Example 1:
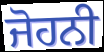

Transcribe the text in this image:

ਜੋਹਨੀ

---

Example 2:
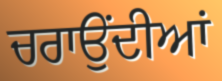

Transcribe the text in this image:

ਚਰਾਉਂਦੀਆਂ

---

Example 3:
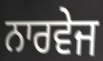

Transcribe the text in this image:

ਨਾਰਵੇਜ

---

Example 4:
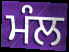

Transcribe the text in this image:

ਮੰਲ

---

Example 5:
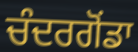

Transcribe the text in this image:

ਚੰਦਰਗੋਂਡਾ